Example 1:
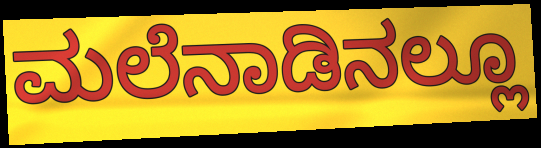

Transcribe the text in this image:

ಮಲೆನಾಡಿನಲ್ಲೂ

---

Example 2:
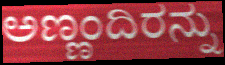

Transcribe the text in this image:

ಅಣ್ಣಂದಿರನ್ನು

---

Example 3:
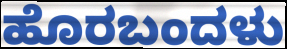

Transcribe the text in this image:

ಹೊರಬಂದಳು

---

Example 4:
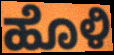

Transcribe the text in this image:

ಹೊಳಿ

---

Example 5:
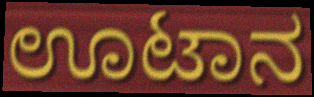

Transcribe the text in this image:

ಊಟಾನ